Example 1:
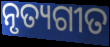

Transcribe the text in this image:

ନୃତ୍ୟଗୀତ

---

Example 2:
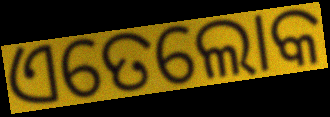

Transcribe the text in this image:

ଏତେଲୋକ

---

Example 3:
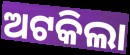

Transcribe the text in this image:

ଅଟକିଲା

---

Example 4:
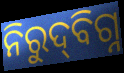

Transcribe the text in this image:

ନିରୁଦ୍‍ବିଗ୍ନ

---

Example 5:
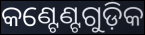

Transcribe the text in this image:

କଣ୍ଟେଣ୍ଟଗୁଡ଼ିକ